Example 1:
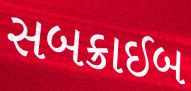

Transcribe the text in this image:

સબક્રાઈબ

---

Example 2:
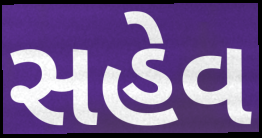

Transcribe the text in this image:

સહેવ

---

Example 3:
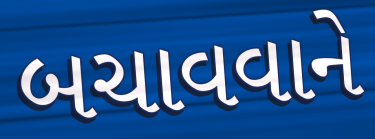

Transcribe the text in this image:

બચાવવાને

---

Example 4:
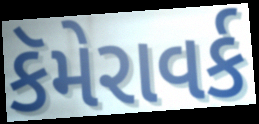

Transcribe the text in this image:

કૅમેરાવર્ક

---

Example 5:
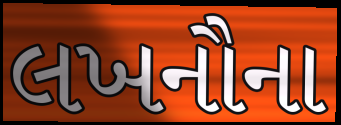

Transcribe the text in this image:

લખનૌના